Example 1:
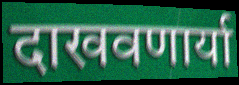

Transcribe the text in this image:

दाखवणार्या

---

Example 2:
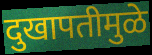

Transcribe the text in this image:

दुखापतीमुळे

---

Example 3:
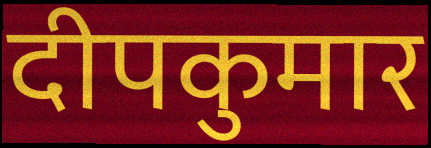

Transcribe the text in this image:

दीपकुमार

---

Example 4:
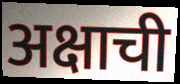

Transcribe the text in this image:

अक्षाची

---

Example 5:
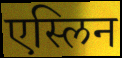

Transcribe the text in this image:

एस्लिन